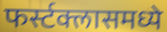
फर्स्टक्लासमध्ये